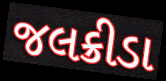
જલક્રીડા